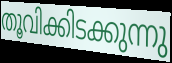
തൂവിക്കിടക്കുന്നു